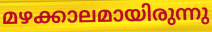
മഴക്കാലമായിരുന്നു